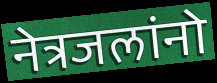
नेत्रजलांनो